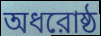
অধরোষ্ঠ